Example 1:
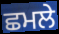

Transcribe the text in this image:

ਛਮਲੇ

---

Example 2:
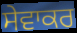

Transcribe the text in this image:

ਸੇਵਾਕਰ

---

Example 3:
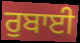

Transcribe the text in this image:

ਰੁਬਾਈ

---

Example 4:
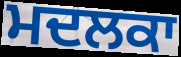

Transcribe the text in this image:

ਮਦਲਕਾ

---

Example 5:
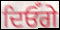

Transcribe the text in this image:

ਦਿਓਁਗੇ